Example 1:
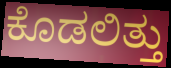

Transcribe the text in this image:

ಕೊಡಲಿತ್ತು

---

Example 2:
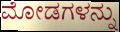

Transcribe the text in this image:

ಮೋಡಗಳನ್ನು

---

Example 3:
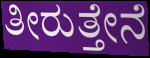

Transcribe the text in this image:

ತೀರುತ್ತೇನೆ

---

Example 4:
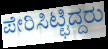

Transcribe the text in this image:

ಪೇರಿಸಿಟ್ಟಿದ್ದರು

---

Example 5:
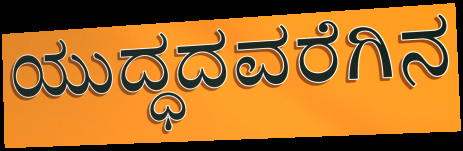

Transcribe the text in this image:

ಯುದ್ಧದವರೆಗಿನ